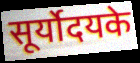
सूर्योदयके